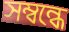
সম্বন্ধে